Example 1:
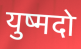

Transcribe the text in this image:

युष्मदो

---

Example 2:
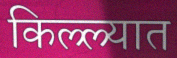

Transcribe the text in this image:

किल्ल्यात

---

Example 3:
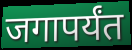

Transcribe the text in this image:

जगापर्यंत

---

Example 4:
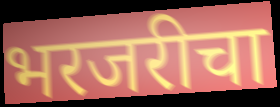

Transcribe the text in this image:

भरजरीचा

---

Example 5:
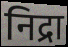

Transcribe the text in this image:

निद्रा